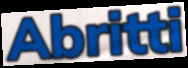
Abritti